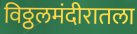
विठ्ठलमंदीरातला